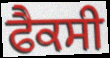
ਫੈਕਸੀ